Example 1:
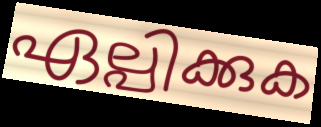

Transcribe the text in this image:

ഏല്പിക്കുക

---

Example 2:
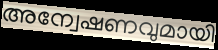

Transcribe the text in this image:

അന്വേഷണവുമായി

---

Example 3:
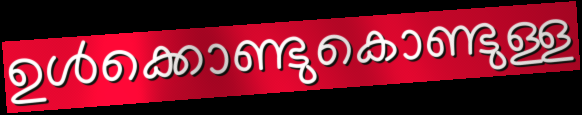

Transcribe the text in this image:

ഉൾക്കൊണ്ടുകൊണ്ടുള്ള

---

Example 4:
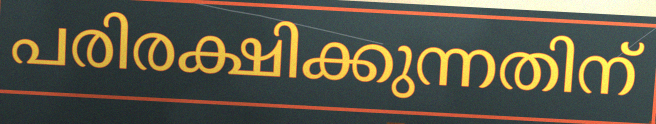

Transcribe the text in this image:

പരിരക്ഷിക്കുന്നതിന്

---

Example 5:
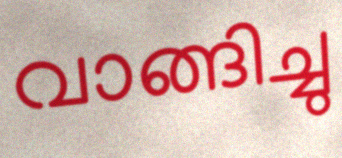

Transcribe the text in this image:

വാങ്ങിച്ചു